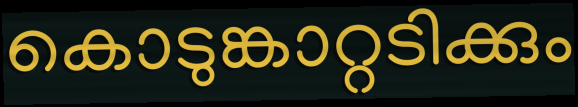
കൊടുങ്കാറ്റടിക്കും